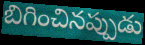
బిగించినప్పుడు